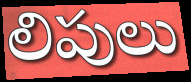
లిపులు